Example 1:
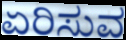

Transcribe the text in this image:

ಏರಿಸುವ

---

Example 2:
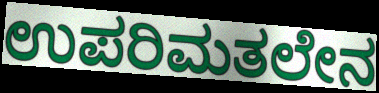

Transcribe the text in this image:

ಉಪರಿಮತಲೇನ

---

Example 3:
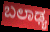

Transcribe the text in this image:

ಬಲಾಢ್ಯ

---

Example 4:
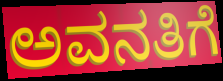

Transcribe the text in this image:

ಅವನತಿಗೆ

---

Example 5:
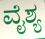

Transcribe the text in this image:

ವೈಶ್ಯ